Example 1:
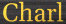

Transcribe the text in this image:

Charl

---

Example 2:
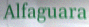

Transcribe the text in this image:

Alfaguara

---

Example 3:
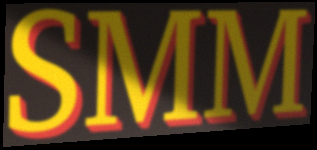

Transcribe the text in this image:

SMM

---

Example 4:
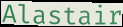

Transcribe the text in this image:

Alastair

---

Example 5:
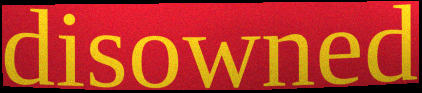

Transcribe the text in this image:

disowned